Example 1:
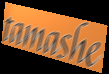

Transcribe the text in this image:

tamashe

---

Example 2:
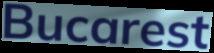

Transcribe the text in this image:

Bucarest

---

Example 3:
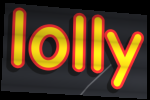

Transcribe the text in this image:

lolly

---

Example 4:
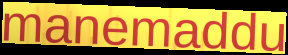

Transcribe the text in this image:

manemaddu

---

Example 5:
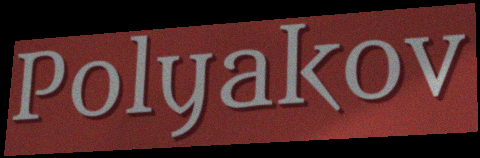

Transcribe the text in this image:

Polyakov